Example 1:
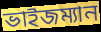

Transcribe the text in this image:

ভাইজম্যান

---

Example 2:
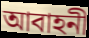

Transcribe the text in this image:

আবাহনী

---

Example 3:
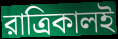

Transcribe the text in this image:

রাত্রিকালই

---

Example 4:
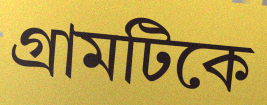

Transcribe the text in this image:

গ্রামটিকে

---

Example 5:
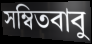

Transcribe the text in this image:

সম্বিতবাবু